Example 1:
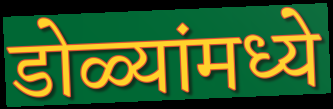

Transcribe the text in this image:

डोळ्यांमध्ये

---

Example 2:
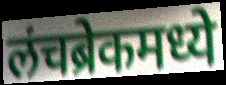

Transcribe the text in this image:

लंचब्रेकमध्ये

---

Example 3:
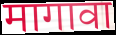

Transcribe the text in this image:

मागावा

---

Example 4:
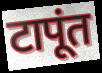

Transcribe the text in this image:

टापूंत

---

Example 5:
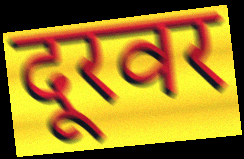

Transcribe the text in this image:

दूरवर